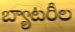
బ్యాటరీల